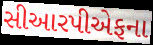
સીઆરપીએફના